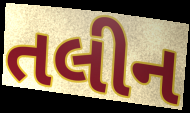
તલીન